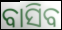
ବାସିବ